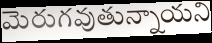
మెరుగవుతున్నాయని